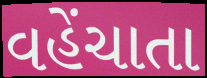
વહેંચાતા